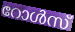
റോൾസ്